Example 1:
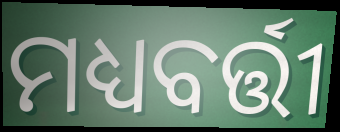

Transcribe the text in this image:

ମଧ୍ୟବର୍ତ୍ତୀ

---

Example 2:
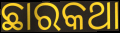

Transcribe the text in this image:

ଛାରକଥା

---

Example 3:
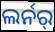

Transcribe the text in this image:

ଲର୍ନର୍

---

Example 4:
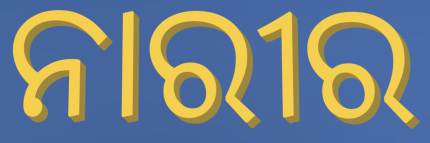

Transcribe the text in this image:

ନାରୀର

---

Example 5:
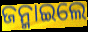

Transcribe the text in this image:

ଜନ୍ମାଇଲେ